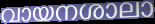
വായനശാലാ